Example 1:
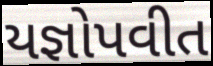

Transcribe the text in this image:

યજ્ઞોપવીત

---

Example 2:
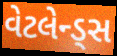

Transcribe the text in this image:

વેટલેન્ડ્સ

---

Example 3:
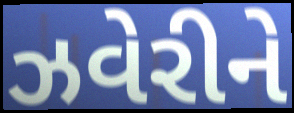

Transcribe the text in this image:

ઝવેરીને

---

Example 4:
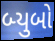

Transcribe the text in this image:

બ્યુબો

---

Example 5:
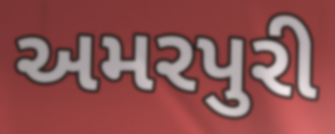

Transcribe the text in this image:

અમરપુરી